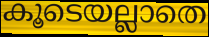
കൂടെയല്ലാതെ